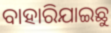
ବାହାରିଯାଇଛୁ